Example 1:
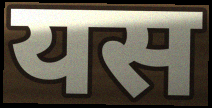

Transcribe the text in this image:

यस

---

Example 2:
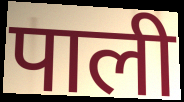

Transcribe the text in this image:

पाली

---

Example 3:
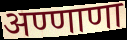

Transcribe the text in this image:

अण्णाणा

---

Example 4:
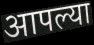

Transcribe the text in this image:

आपल्या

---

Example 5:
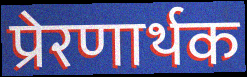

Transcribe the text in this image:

प्रेरणार्थक